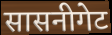
सासनीगेट